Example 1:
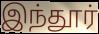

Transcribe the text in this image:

இந்தூர்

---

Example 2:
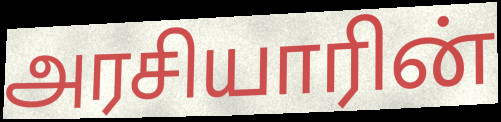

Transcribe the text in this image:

அரசியாரின்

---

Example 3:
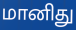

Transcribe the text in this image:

மானிது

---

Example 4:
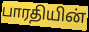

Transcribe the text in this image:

பாரதியின்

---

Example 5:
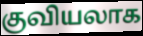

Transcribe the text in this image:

குவியலாக